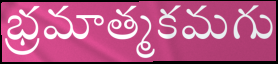
భ్రమాత్మకమగు